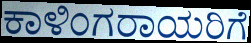
ಕಾಳಿಂಗರಾಯರಿಗೆ